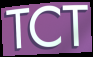
TCT